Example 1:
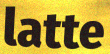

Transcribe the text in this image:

latte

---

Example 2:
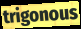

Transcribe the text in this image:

trigonous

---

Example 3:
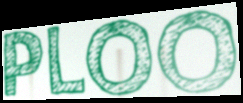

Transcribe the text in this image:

PLOO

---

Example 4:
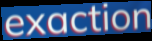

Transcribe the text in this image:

exaction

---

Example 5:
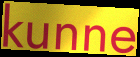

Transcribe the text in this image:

kunne